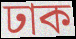
ঢাক